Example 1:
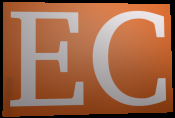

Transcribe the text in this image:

EC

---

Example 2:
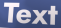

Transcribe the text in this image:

Text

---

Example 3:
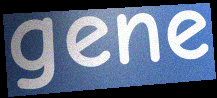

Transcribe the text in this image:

gene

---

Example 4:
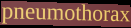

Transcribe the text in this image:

pneumothorax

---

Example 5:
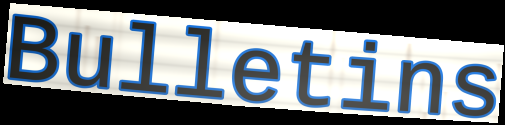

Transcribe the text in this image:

Bulletins